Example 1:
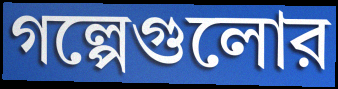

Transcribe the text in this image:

গল্পেগুলোর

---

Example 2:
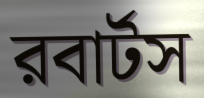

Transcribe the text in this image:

রবার্টস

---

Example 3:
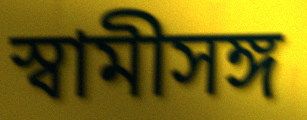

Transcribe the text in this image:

স্বামীসঙ্গ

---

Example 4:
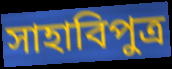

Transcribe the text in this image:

সাহাবিপুত্র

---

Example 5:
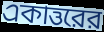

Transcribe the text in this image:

একাত্তরের